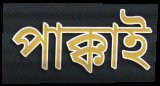
পাক্কাই